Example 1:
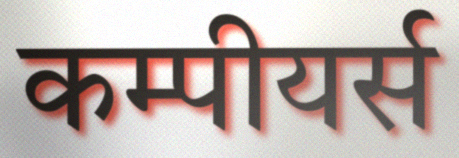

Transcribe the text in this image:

कम्पीयर्स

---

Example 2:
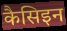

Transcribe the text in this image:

कैसिइन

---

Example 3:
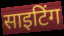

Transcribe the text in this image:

साइटिंग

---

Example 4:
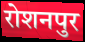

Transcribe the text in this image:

रोशनपुर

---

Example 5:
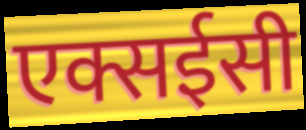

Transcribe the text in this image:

एक्सईसी